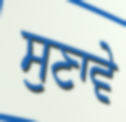
ਸੁਣਾਵੇ